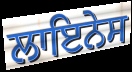
ਲਾਇਨੇਸ